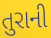
તુરાની